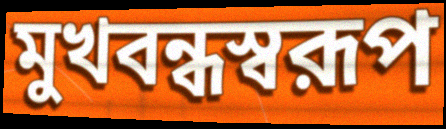
মুখবন্ধস্বরূপ